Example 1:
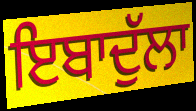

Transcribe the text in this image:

ਇਬਾਦੁੱਲਾ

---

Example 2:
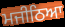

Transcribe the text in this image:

ਮਜੀਠਿਆ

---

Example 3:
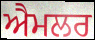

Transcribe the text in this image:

ਐਮਲਰ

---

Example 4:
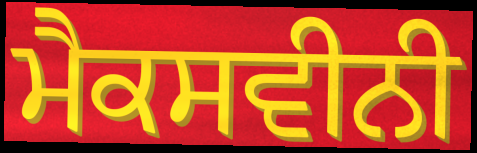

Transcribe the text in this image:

ਮੈਕਸਵੀਨੀ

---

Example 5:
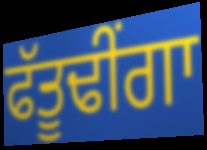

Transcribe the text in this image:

ਫੱਤੂਢੀਂਗਾ